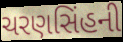
ચરણસિંહની